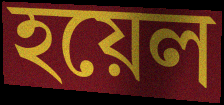
হয়েল